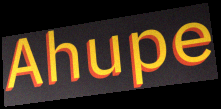
Ahupe